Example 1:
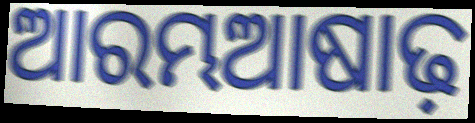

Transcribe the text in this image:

ଆରମ୍ଭଆଷାଢ଼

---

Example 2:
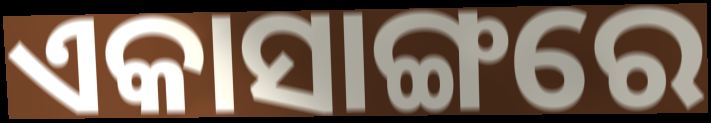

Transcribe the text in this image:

ଏକାସାଙ୍ଗରେ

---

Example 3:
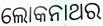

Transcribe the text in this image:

ଲୋକନାଥର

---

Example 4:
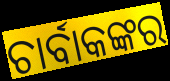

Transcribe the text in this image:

ଚାର୍ବାକଙ୍କର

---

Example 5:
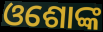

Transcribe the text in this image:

ଓଶୋଙ୍କ